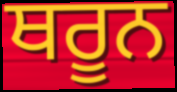
ਥਰੂਨ